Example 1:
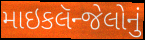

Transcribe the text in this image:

માઇકલૅન્જેલોનું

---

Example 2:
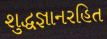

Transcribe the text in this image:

શુદ્ધજ્ઞાનરહિત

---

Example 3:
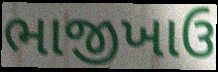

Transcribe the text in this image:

ભાજીખાઉ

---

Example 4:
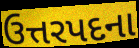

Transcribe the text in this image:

ઉત્તરપદના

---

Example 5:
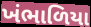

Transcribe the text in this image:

ખંભાળિયા